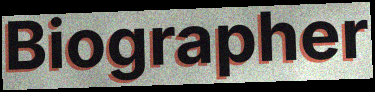
Biographer